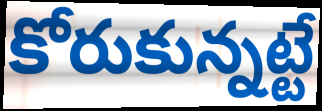
కోరుకున్నట్టే